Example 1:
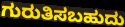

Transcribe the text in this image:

ಗುರುತಿಸಬಹುದು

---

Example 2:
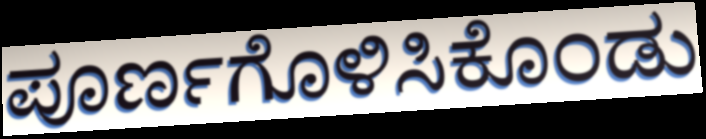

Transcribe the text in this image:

ಪೂರ್ಣಗೊಳಿಸಿಕೊಂಡು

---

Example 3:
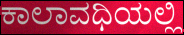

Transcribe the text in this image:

ಕಾಲಾವಧಿಯಲ್ಲಿ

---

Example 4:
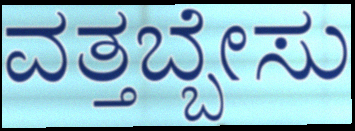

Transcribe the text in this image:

ವತ್ತಬ್ಬೇಸು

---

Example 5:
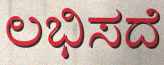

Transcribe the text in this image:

ಲಭಿಸದೆ